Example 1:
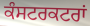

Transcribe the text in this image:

ਕੰਸਟਰਕਟਰਾਂ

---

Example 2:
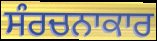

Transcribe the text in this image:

ਸੰਰਚਨਾਕਾਰ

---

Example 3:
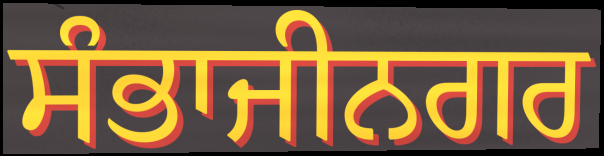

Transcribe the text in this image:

ਸੰਭਾਜੀਨਗਰ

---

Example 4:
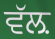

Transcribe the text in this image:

ਵੱਲ਼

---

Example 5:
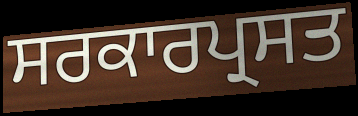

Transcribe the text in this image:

ਸਰਕਾਰਪ੍ਰਸਤ